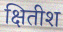
क्षितीश